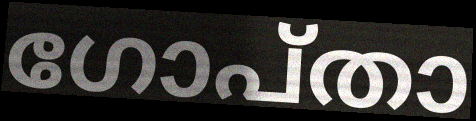
ഗോപ്താ